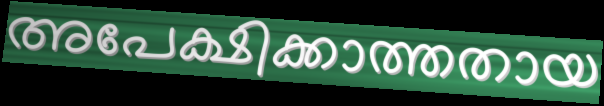
അപേക്ഷിക്കാത്തതായ